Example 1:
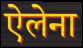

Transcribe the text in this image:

ऐलेना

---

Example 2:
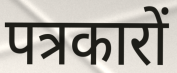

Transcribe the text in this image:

पत्रकारों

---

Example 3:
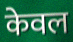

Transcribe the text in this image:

केवल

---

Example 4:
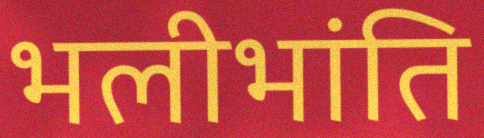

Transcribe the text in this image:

भलीभांति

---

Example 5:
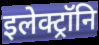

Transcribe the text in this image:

इलेक्ट्रॉनि